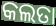
କଲତା